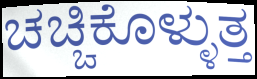
ಚಚ್ಚಿಕೊಳ್ಳುತ್ತ